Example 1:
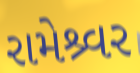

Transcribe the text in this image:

રામેશ્ર્વર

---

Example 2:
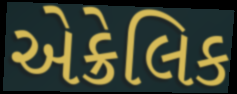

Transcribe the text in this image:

એક્રેલિક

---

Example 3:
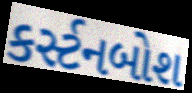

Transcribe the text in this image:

કર્સ્ટનબોશ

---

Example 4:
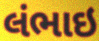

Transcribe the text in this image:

લંભાઇ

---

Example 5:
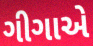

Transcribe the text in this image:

ગીગાએ